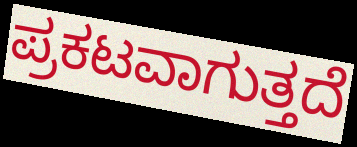
ಪ್ರಕಟವಾಗುತ್ತದೆ